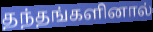
தந்தங்களினால்